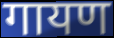
गायण